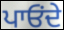
ਪਾਓਂਦੇ